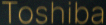
Toshiba